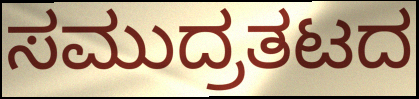
ಸಮುದ್ರತಟದ